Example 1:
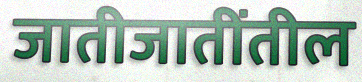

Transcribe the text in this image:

जातीजातींतील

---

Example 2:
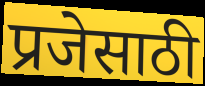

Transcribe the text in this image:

प्रजेसाठी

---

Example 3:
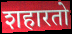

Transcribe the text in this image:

शहारतो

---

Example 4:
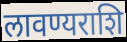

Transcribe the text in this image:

लावण्यराशि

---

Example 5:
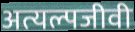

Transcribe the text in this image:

अत्यल्पजीवी